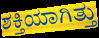
ಶಕ್ತಿಯಾಗಿತ್ತು